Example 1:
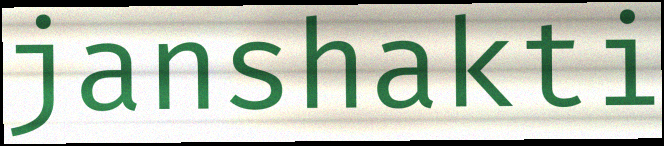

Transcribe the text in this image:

janshakti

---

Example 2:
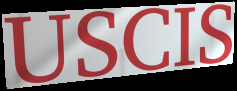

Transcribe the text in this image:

USCIS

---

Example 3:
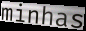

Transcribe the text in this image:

minhas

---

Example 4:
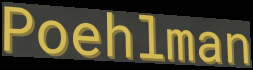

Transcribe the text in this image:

Poehlman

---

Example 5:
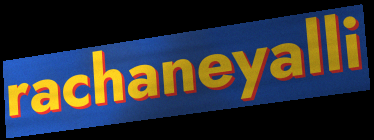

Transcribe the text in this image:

rachaneyalli